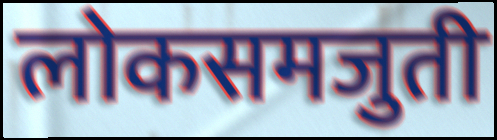
लोकसमजुती